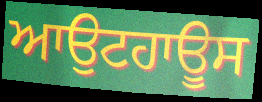
ਆਉਟਹਾਊਸ